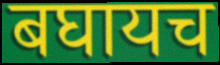
बघायच